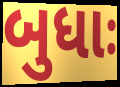
બુધાઃ